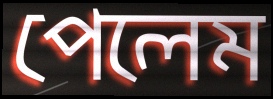
পেলেম